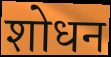
शोधन